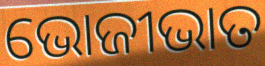
ଭୋଜୀଭାତ